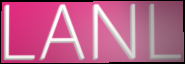
LANL